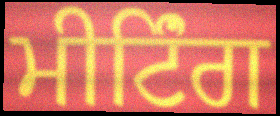
ਮੀਟਿਂੰਗ